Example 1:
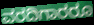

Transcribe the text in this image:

ವರದಿಗಾರರೂ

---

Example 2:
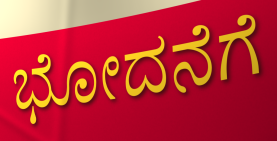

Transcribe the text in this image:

ಭೋದನೆಗೆ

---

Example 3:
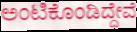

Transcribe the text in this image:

ಅಂಟಿಕೊಂಡಿದ್ದೇವೆ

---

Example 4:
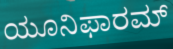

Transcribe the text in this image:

ಯೂನಿಫಾರಮ್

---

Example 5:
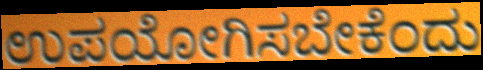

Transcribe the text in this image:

ಉಪಯೋಗಿಸಬೇಕೆಂದು